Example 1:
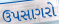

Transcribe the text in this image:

ઉપસાગરો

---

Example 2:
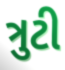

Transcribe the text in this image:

ત્રુટી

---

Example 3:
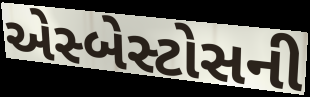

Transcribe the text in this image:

એસ્બેસ્ટોસની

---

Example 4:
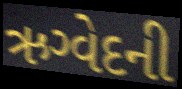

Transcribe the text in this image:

ઋગ્વેદની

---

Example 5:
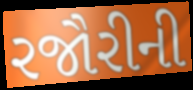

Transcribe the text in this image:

રજૌરીની